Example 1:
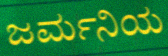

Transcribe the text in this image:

ಜರ್ಮನಿಯ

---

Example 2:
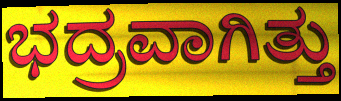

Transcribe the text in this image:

ಭದ್ರವಾಗಿತ್ತು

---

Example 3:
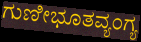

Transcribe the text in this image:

ಗುಣೀಭೂತವ್ಯಂಗ್ಯ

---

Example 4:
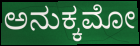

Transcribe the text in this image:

ಅನುಕ್ಕಮೋ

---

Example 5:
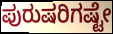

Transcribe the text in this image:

ಪುರುಷರಿಗಷ್ಟೇ